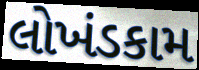
લોખંડકામ